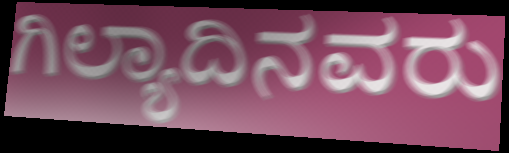
ಗಿಲ್ಯಾದಿನವರು